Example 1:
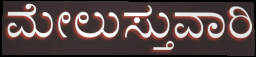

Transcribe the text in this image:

ಮೇಲುಸ್ತುವಾರಿ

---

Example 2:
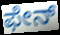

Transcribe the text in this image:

ಫೇನ್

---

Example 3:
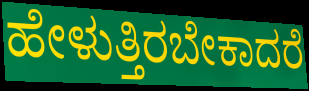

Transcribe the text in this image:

ಹೇಳುತ್ತಿರಬೇಕಾದರೆ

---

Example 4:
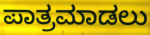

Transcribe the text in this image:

ಪಾತ್ರಮಾಡಲು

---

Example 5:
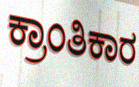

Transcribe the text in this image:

ಕ್ರಾಂತಿಕಾರ